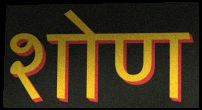
शोण